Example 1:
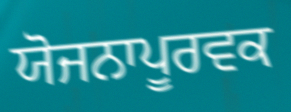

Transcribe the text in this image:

ਯੋਜਨਾਪੂਰਵਕ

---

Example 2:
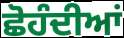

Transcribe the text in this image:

ਛੋਹੰਦੀਆਂ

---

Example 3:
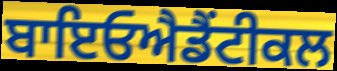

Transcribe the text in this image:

ਬਾਇਓਐਡੈਂਟੀਕਲ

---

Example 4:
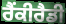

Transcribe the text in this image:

ਰੈਂਕੀਰੈਡੀ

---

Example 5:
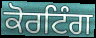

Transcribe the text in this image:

ਕੋਰਟਿੰਗ